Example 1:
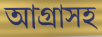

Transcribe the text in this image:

আগ্রাসহ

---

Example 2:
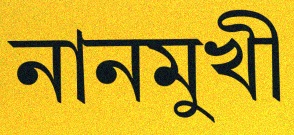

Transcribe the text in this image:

নানমুখী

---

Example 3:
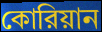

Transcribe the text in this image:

কোরিয়ান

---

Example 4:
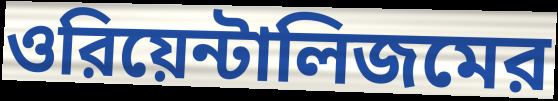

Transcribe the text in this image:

ওরিয়েন্টালিজমের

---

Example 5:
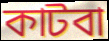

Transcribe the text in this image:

কাটবা